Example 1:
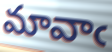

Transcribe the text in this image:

మావాఁ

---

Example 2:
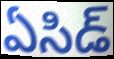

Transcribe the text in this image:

ఏసిడ్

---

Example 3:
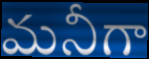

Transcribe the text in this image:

మనీగా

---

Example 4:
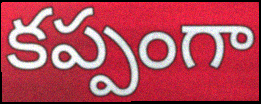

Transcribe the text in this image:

కప్పంగా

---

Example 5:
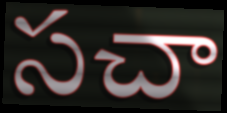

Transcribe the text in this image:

సచా